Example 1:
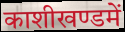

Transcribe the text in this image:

काशीखण्डमें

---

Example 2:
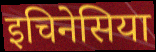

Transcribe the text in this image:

इचिनेसिया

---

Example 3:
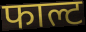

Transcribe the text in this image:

फाल्ट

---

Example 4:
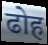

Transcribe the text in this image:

ढोह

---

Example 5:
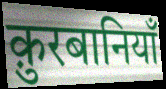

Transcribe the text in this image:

क़ुरबानियाँ